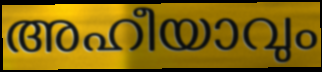
അഹീയാവും